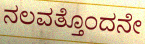
ನಲವತ್ತೊಂದನೇ